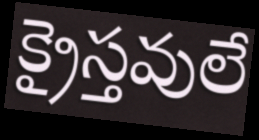
క్రైస్తవులే